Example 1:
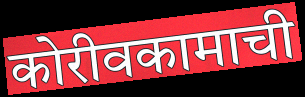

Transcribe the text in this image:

कोरीवकामाची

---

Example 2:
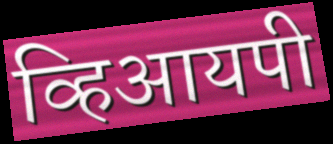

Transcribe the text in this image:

व्हिआयपी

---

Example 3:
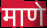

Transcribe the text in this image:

माणे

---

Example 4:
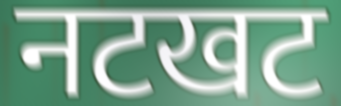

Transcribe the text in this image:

नटखट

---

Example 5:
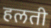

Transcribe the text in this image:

हलती